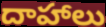
దాహాలు